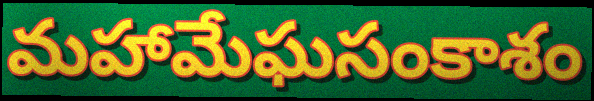
మహామేఘసంకాశం